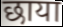
छाया